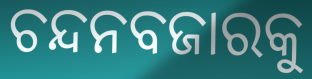
ଚନ୍ଦନବଜାରକୁ